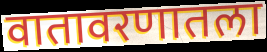
वातावरणातला